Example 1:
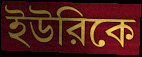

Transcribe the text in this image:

ইউরিকে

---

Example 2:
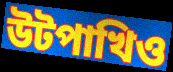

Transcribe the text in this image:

উটপাখিও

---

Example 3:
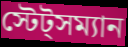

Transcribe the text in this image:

স্টেট্সম্যান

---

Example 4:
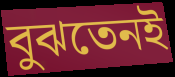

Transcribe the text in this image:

বুঝতেনই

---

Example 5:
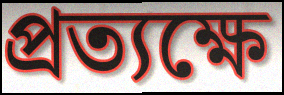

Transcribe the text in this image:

প্রত্যক্ষে